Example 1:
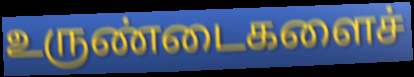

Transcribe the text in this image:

உருண்டைகளைச்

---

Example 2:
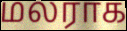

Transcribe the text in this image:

மலராக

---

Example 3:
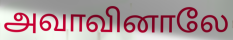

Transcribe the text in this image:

அவாவினாலே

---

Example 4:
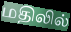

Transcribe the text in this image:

மதிலில்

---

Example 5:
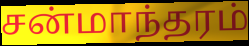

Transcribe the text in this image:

சன்மாந்தரம்